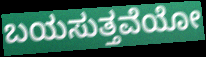
ಬಯಸುತ್ತವೆಯೋ